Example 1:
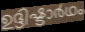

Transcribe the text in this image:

ഉദ്ദിഷ്ടാർഥം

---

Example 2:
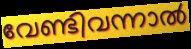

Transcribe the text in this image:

വേണ്ടിവന്നാൽ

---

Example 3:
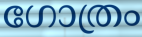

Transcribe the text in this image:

ഗോത്രം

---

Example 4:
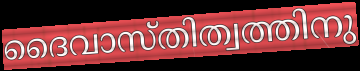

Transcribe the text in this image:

ദൈവാസ്തിത്വത്തിനു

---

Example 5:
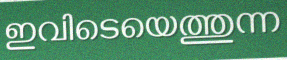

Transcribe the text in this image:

ഇവിടെയെത്തുന്ന